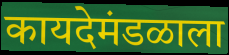
कायदेमंडळाला